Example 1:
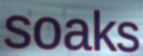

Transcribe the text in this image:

soaks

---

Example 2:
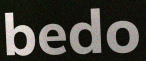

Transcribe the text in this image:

bedo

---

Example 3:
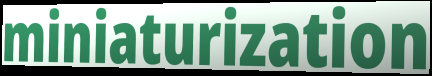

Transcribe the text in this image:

miniaturization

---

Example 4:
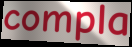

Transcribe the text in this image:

compla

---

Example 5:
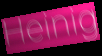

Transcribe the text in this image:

Heinig